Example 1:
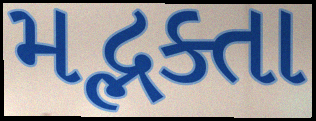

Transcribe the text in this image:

મદ્ભક્તા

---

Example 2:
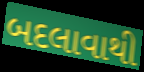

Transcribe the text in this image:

બદલાવાથી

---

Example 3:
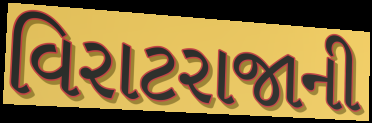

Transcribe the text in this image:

વિરાટરાજાની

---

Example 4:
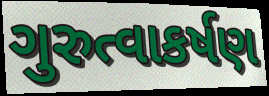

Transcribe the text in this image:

ગુરુત્વાકર્ષણ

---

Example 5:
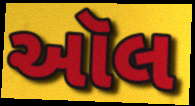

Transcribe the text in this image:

ઑલ